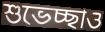
শুভেচ্ছাও